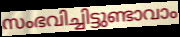
സംഭവിച്ചിട്ടുണ്ടാവാം